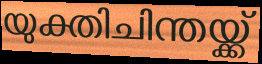
യുക്തിചിന്തയ്ക്ക്